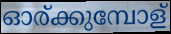
ഓര്ക്കുമ്പോള്